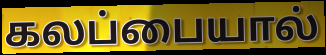
கலப்பையால்